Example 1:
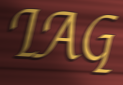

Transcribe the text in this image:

IAG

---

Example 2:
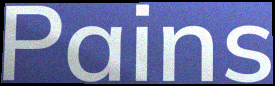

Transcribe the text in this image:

Pains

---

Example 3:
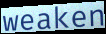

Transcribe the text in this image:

weaken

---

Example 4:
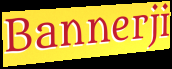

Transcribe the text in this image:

Bannerji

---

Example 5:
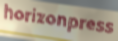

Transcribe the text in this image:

horizonpress